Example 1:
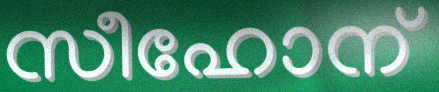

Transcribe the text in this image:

സീഹോന്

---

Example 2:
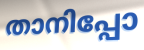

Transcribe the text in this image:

താനിപ്പോ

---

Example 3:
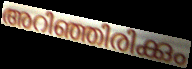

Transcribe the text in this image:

അറിഞ്ഞിരിക്കും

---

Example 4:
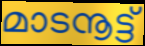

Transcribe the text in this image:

മാടനൂട്ട്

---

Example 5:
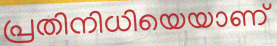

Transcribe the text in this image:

പ്രതിനിധിയെയാണ്